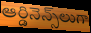
ఆర్డినెన్స్‌లుగా